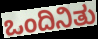
ಒಂದಿನಿತು